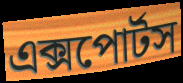
এক্সপোর্টস